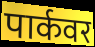
पार्कवर